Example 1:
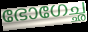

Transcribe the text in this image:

ഭോഗേച്ഛ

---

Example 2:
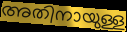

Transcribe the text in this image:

അതിനായുള്ള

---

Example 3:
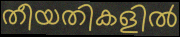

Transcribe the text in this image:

തീയതികളിൽ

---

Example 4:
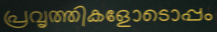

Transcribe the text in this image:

പ്രവൃത്തികളോടൊപ്പം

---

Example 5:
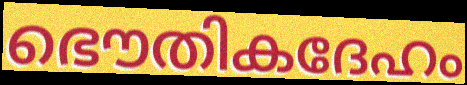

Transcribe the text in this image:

ഭൌതികദേഹം